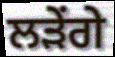
ਲੜੇਂਗੇ